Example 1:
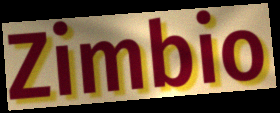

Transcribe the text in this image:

Zimbio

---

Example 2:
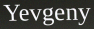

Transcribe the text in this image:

Yevgeny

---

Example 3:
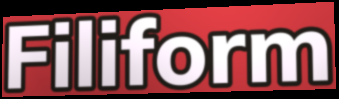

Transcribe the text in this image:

Filiform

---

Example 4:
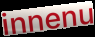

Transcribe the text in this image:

innenu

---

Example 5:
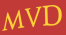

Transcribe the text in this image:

MVD